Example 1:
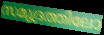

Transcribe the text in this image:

സമുദ്രത്തിലോ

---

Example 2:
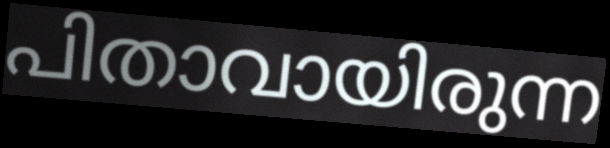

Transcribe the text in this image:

പിതാവായിരുന്ന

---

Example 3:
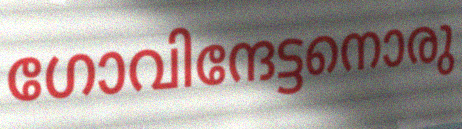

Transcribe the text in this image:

ഗോവിന്ദേട്ടനൊരു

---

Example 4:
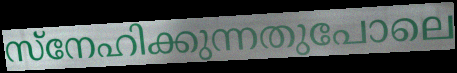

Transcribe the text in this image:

സ്നേഹിക്കുന്നതുപോലെ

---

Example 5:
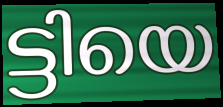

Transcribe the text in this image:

ട്ടിയെ